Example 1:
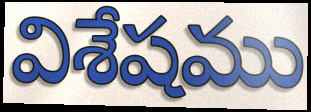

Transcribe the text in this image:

విశేషము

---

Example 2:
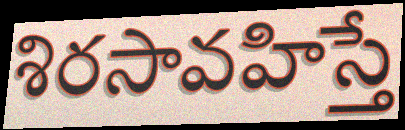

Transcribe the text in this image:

శిరసావహిస్తే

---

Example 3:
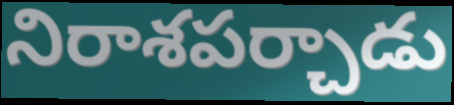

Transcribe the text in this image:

నిరాశపర్చాడు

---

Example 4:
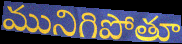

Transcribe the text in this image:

మునిగిపోతూ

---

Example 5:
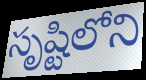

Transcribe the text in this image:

సృష్టిలోని